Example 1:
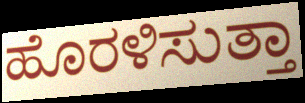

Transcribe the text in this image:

ಹೊರಳಿಸುತ್ತಾ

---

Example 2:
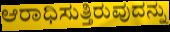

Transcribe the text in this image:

ಆರಾಧಿಸುತ್ತಿರುವುದನ್ನು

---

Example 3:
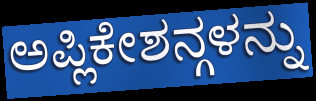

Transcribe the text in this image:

ಅಪ್ಲಿಕೇಶನ್ಗಳನ್ನು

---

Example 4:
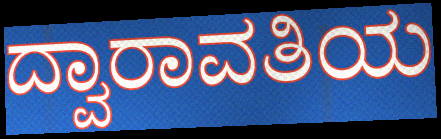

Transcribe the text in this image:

ದ್ವಾರಾವತಿಯ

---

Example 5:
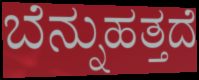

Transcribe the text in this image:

ಬೆನ್ನುಹತ್ತದೆ